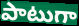
పాటుగా